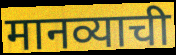
मानव्याची